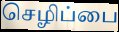
செழிப்பை